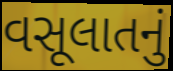
વસૂલાતનું